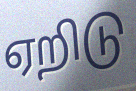
ஏறிடு